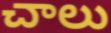
చాలు